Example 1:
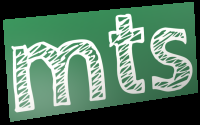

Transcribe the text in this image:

mts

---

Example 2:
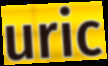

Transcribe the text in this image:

uric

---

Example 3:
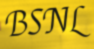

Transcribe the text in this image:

BSNL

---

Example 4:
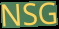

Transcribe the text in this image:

NSG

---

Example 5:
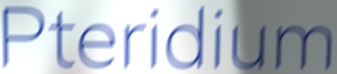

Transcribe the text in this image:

Pteridium